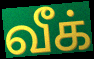
வீக்